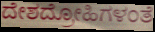
ದೇಶದ್ರೋಹಿಗಳಂತೆ